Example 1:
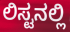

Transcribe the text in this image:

ಲಿಸ್ಟನಲ್ಲಿ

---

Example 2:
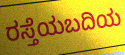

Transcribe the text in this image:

ರಸ್ತೆಯಬದಿಯ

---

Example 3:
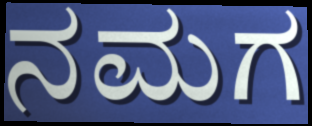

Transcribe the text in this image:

ನಮಗ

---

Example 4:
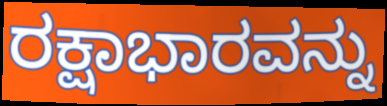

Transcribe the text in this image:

ರಕ್ಷಾಭಾರವನ್ನು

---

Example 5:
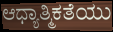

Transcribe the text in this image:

ಆಧ್ಯಾತ್ಮಿಕತೆಯು